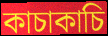
কাচাকাচি